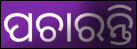
ପଚାରନ୍ତି